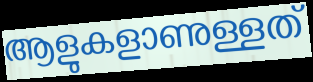
ആളുകളാണുള്ളത്